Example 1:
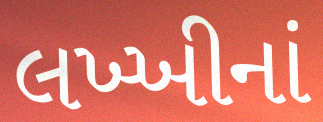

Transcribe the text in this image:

લખ્ખીનાં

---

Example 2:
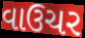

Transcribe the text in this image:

વાઉચર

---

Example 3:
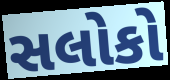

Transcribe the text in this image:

સલોકો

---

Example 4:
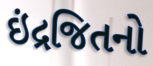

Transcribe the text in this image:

ઇંદ્રજિતનો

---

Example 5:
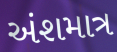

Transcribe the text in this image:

અંશમાત્ર